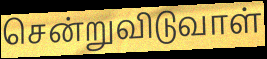
சென்றுவிடுவாள்